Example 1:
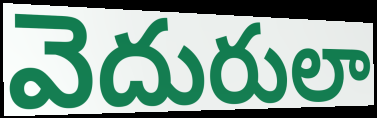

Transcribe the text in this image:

వెదురులా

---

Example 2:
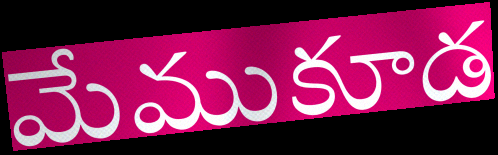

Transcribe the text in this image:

మేముకూడ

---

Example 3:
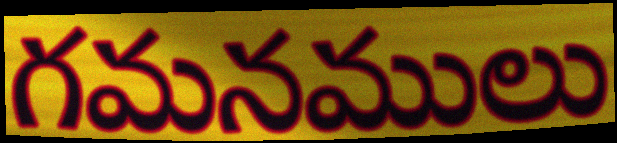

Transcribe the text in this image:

గమనములు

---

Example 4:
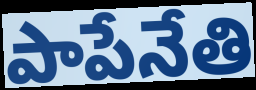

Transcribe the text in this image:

పాపేనేతి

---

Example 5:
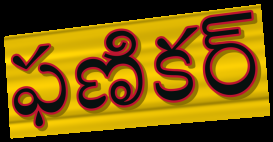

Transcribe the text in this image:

ఫణికర్